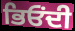
ਭਿਓਂਦੀ